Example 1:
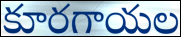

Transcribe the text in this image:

కూరగాయల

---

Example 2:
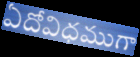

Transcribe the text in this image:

ఏదోవిధముగా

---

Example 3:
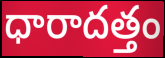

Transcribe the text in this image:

ధారాదత్తం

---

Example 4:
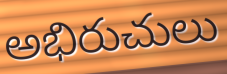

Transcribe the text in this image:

అభిరుచులు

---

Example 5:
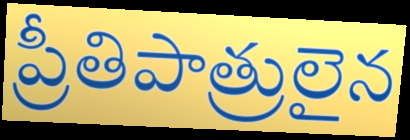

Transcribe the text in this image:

ప్రీతిపాత్రులైన